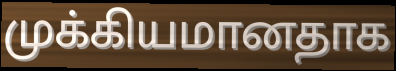
முக்கியமானதாக